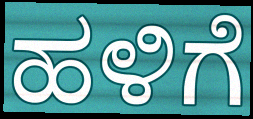
ಹಳಿಗೆ